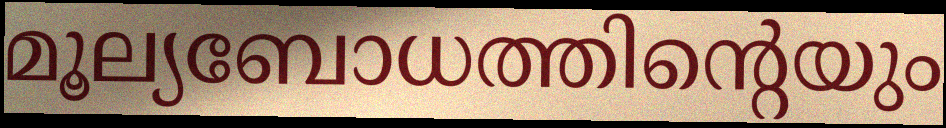
മൂല്യബോധത്തിന്റെയും